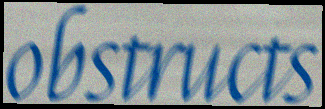
obstructs